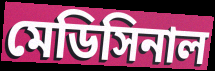
মেডিসিনাল